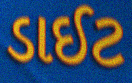
ડાઈટ